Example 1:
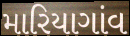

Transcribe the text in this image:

મારિયાગાંવ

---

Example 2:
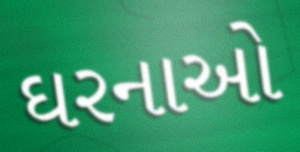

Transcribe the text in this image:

ઘરનાઓ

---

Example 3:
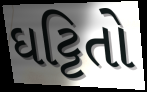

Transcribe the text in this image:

ઘટ્ટિતો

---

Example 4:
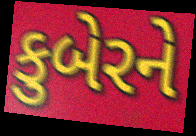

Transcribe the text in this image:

કુબેરને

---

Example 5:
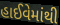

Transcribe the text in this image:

હાઈવેમાંથી